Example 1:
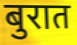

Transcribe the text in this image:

बुरात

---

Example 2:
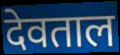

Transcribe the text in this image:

देवताल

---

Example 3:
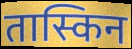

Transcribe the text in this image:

तास्किन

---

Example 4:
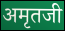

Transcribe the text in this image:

अमृतजी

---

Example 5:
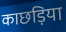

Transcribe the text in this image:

काछड़िया